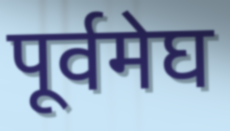
पूर्वमेघ